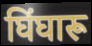
घिंघारू